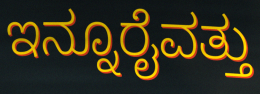
ಇನ್ನೂರೈವತ್ತು